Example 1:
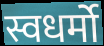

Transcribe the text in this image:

स्वधर्मो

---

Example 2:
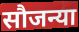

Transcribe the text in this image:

सौजन्या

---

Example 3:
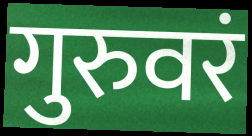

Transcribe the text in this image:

गुरुवरं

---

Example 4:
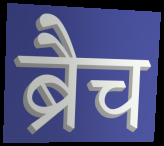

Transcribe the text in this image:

ब्रैच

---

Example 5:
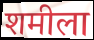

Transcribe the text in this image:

शमीला